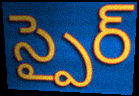
స్పైర్